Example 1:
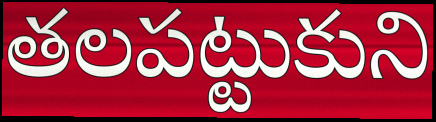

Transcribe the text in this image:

తలపట్టుకుని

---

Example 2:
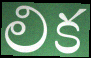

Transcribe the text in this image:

లిక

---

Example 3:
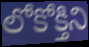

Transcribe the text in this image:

లోకోక్తిని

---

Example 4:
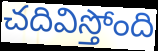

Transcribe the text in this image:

చదివిస్తోంది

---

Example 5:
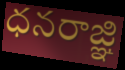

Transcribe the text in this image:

ధనరాజ్ఞి